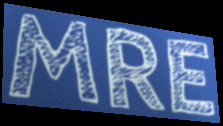
MRE